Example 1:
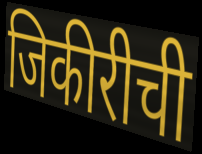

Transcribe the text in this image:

जिकीरीची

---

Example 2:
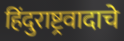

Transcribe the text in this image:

हिंदुराष्ट्रवादाचे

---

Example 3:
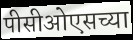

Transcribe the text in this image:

पीसीओएसच्या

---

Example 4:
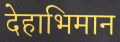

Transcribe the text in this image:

देहाभिमान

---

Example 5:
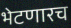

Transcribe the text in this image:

भेटणारच